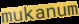
mukanum